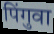
पिंगुवा